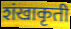
शंखाकृती